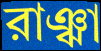
রাঞ্ঝা